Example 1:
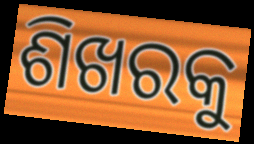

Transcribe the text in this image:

ଶିଖରକୁ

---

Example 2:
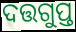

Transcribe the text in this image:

ଦତ୍ତଗୁପ୍ତ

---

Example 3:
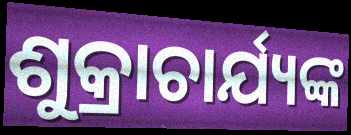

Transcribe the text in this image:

ଶୁକ୍ରାଚାର୍ଯ୍ୟଙ୍କ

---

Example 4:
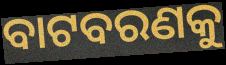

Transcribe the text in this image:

ବାଟବରଣକୁ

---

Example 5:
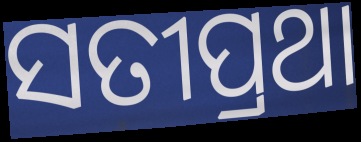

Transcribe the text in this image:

ସତୀପ୍ରଥା